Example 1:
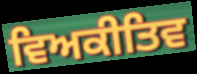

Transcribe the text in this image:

ਵਿਅਕੀਤਿਵ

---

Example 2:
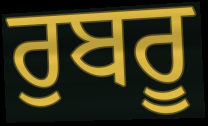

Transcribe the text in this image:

ਰੁਬਰੂ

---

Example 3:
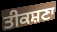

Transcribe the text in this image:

ਤੀਕਸ਼ਣਾ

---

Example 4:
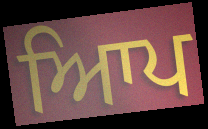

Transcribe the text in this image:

ਆਿਪ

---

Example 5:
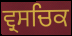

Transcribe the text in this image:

ਵ੍ਰਸਚਿਕ